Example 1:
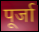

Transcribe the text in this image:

पूर्जा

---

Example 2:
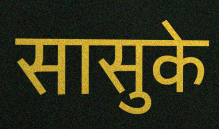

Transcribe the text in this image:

सासुके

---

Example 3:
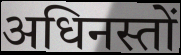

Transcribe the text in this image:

अधिनस्तों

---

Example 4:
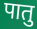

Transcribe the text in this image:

पातु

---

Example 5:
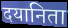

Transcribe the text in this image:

दयानिता